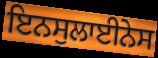
ਇਨਸੁਲਾਈਨੇਸ